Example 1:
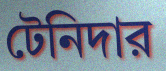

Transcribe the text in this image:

টেনিদার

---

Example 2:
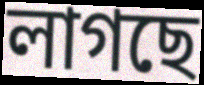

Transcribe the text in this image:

লাগছে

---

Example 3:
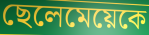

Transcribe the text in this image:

ছেলেমেয়েকে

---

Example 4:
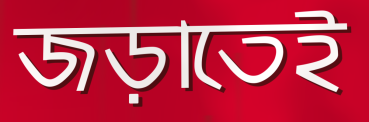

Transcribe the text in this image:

জড়াতেই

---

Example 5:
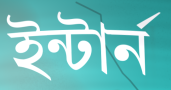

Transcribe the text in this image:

ইন্টার্ন